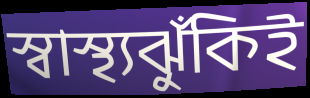
স্বাস্থ্যঝুঁকিই